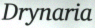
Drynaria